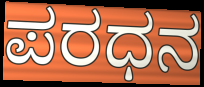
ಪರಧನ